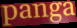
panga